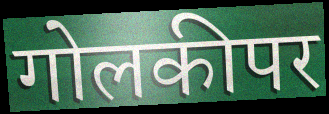
गोलकीपर